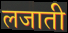
लजाती